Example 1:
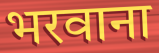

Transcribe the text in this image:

भरवाना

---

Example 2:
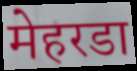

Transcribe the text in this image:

मेहरडा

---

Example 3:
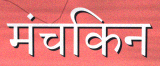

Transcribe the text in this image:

मंचकिन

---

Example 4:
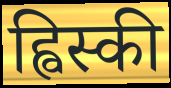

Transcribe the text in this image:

ह्विस्की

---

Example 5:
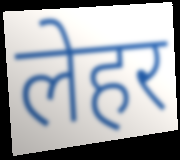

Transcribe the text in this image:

लेहर